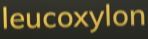
leucoxylon